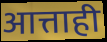
आत्ताही